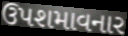
ઉપશમાવનાર